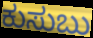
ಕುಸುಬು